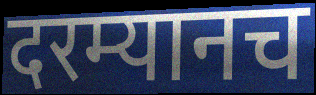
दरम्यानच